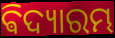
ଵିଦ୍ୟାରମ୍ଭ